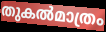
തുകൽമാത്രം